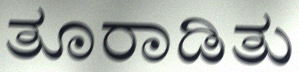
ತೂರಾಡಿತು